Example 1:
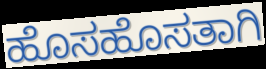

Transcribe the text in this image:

ಹೊಸಹೊಸತಾಗಿ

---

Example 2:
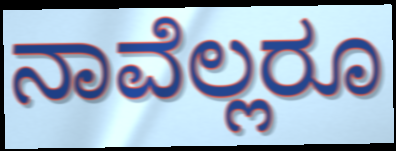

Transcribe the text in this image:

ನಾವೆಲ್ಲರೂ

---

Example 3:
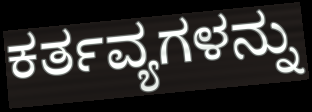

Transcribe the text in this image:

ಕರ್ತವ್ಯಗಳನ್ನು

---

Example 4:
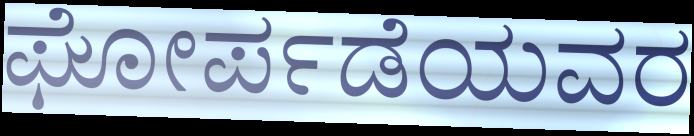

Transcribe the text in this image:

ಘೋರ್ಪಡೆಯವರ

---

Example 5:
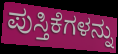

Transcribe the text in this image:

ಪುಸ್ತಿಕೆಗಳನ್ನು